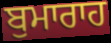
ਬੁਮਾਰਾਹ